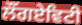
ਲੌਂਗਏਵਿਟੀ